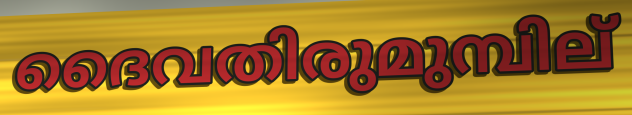
ദൈവതിരുമുമ്പില്